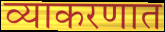
व्याकरणात